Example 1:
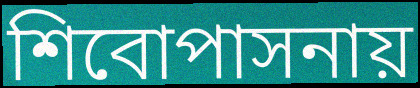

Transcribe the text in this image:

শিবোপাসনায়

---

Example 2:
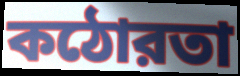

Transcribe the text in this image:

কঠোরতা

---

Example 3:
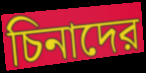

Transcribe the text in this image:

চিনাদের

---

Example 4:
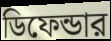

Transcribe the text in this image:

ডিফেন্ডার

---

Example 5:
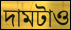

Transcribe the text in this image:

দামটাও